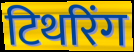
टिथरिंग